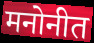
मनोनीत